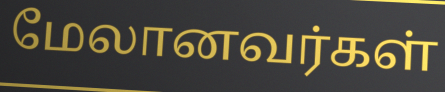
மேலானவர்கள்